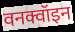
वनक्वॉइन